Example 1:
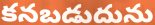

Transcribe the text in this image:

కనబడుదును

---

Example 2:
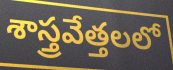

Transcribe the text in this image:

శాస్త్రవేత్తలలో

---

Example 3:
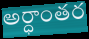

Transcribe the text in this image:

అర్ధాంతర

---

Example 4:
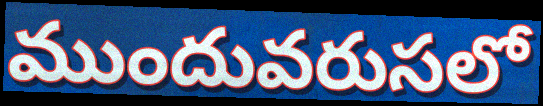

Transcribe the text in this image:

ముందువరుసలో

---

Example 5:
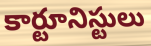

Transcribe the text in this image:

కార్టూనిస్టులు